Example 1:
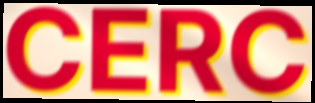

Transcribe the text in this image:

CERC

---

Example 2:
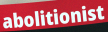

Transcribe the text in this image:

abolitionist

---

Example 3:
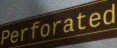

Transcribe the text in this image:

Perforated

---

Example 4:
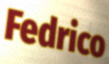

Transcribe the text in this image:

Fedrico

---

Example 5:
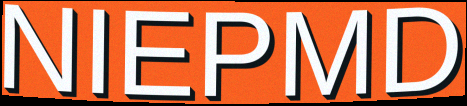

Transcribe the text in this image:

NIEPMD